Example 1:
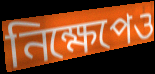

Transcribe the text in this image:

নিক্ষেপেও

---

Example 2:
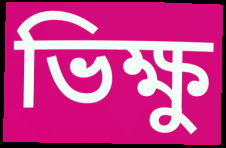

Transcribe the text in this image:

ভিক্ষু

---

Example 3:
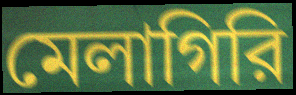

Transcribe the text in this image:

মেলাগিরি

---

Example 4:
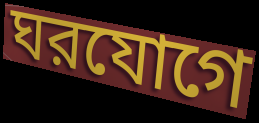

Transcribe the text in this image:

ঘরযোগে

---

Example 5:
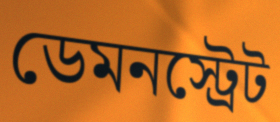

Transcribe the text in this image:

ডেমনস্ট্রেট